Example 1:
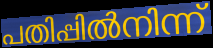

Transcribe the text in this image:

പതിപ്പിൽനിന്ന്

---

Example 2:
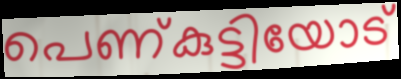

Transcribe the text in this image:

പെണ്കുട്ടിയോട്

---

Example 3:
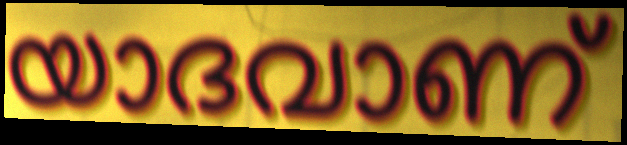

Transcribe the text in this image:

യാദവാണ്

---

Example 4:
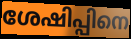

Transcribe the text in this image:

ശേഷിപ്പിനെ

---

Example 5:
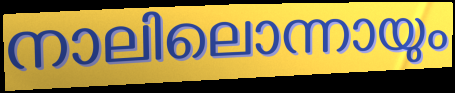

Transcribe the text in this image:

നാലിലൊന്നായും